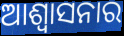
ଆଶ୍ୱାସନାର